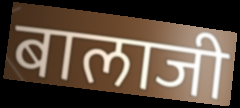
बालाजी